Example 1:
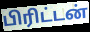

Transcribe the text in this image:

பிரிட்டன்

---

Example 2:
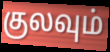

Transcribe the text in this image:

குலவும்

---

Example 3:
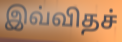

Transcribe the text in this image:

இவ்விதச்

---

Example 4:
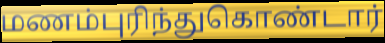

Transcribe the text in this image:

மணம்புரிந்துகொண்டார்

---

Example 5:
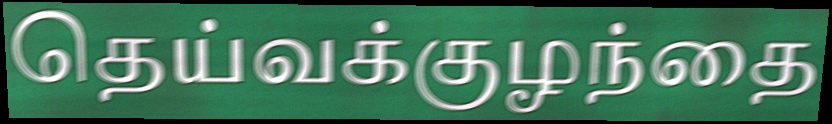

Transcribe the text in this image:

தெய்வக்குழந்தை